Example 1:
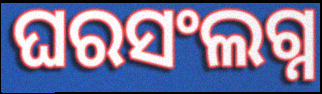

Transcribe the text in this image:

ଘରସଂଲଗ୍ନ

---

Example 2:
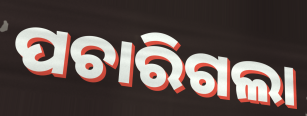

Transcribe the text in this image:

ପଚାରିଗଲା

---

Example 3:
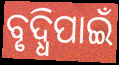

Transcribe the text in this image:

ବୃଦ୍ଧିପାଇଁ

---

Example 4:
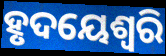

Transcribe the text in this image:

ହୃଦୟେଶ୍ଵରି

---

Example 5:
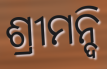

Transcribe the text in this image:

ଶ୍ରୀମନ୍ଦି